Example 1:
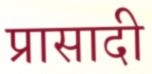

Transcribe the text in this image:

प्रासादी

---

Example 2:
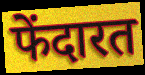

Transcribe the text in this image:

फेंदारत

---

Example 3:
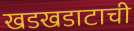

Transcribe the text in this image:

खडखडाटाची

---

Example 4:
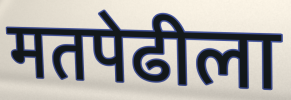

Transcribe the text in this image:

मतपेढीला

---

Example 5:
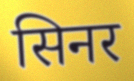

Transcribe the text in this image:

सिनर